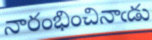
నారంభించినాఁడు